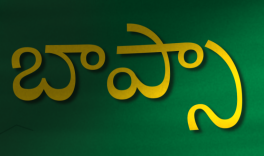
బాప్సా